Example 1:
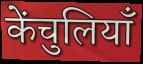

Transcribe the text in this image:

केंचुलियाँ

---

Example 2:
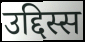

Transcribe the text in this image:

उद्दिस्स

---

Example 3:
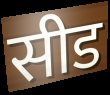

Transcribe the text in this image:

सीड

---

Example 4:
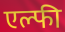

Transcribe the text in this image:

एल्फी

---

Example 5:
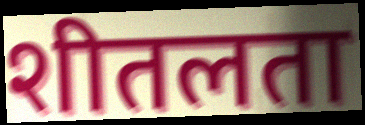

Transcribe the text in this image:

शीतलता